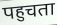
पहुचता